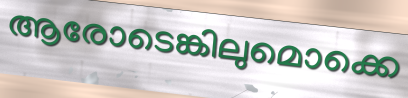
ആരോടെങ്കിലുമൊക്കെ